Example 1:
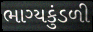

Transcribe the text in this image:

ભાગ્યકુંડળી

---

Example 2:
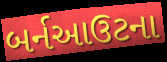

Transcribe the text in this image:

બર્નઆઉટના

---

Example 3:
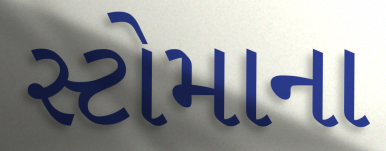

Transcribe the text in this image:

સ્ટોમાના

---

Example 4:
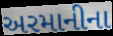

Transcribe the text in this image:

અરમાનીના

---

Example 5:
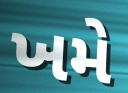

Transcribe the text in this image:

ખમે